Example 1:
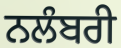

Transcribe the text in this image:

ਨਲੰਬਰੀ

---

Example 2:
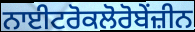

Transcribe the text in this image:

ਨਾਈਟਰੋਕਲੋਰੋਬੇਂਜ਼ੀਨ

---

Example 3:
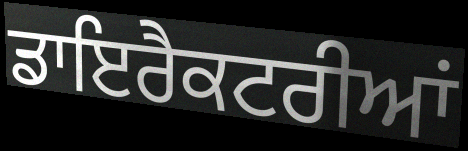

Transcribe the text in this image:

ਡਾਇਰੈਕਟਰੀਆਂ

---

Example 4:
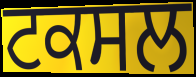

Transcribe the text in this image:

ਟਕਸਲ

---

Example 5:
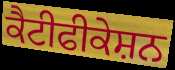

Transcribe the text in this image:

ਕੈਟੀਫੀਕੇਸ਼ਨ